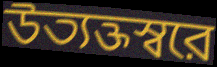
উত্যক্তস্বরে